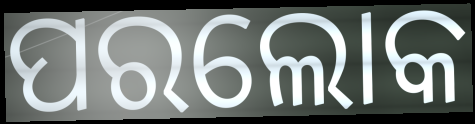
ପରଲୋକ